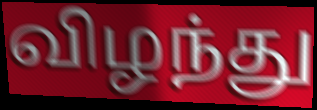
விழந்து